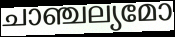
ചാഞ്ചല്യമോ